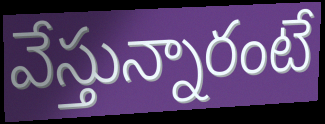
వేస్తున్నారంటే